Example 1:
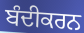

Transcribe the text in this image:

ਬੰਦੀਕਰਨ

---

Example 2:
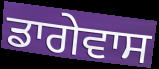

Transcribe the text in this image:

ਡਾਗੇਵਾਸ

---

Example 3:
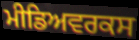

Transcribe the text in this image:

ਮੀਡਿਅਵਰਕਸ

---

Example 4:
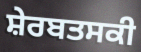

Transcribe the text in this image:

ਸ਼ੇਰਬਤਸਕੀ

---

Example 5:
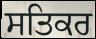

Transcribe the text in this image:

ਸਤਿਕਰ